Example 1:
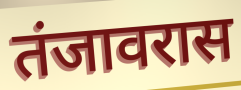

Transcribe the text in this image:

तंजावरास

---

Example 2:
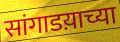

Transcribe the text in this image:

सांगाडय़ाच्या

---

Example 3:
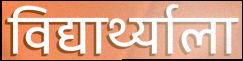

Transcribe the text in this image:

विद्यार्थ्याला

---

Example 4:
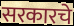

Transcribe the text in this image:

सरकारचे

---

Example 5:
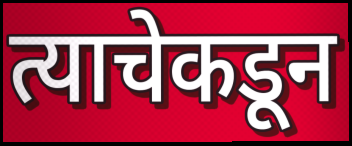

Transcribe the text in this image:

त्याचेकडून